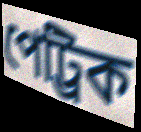
পেট্ৰিক